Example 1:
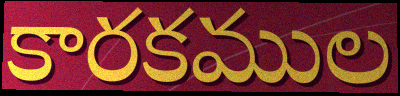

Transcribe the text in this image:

కారకముల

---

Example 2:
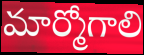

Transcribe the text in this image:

మార్మోగాలి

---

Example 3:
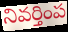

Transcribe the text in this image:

నివర్తింప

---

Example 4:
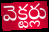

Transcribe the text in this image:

వెక్టర్లు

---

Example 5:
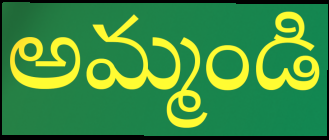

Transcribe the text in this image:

అమ్మండి